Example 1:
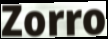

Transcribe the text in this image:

Zorro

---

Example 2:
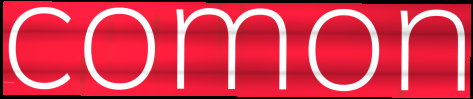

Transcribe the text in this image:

comon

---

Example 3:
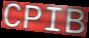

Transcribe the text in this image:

CPIB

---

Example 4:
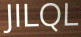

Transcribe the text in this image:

JILQL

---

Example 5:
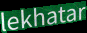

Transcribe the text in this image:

lekhatar